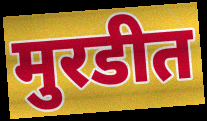
मुरडीत